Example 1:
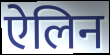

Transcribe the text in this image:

ऐलिन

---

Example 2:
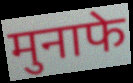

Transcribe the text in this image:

मुनाफे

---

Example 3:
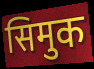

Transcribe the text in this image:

सिमुक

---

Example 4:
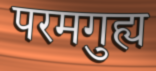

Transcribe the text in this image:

परमगुह्य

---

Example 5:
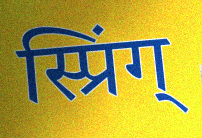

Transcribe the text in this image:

स्प्रिंग्